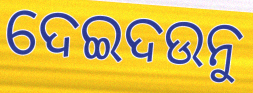
ଦେଇଦଉନୁ